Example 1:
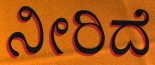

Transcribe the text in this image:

ನೀರಿದೆ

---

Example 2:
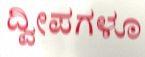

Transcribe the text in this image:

ದ್ವೀಪಗಳೂ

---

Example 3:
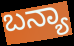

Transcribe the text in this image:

ಬನ್ಯಾ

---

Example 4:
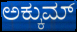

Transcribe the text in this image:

ಅಕ್ಕುಮ್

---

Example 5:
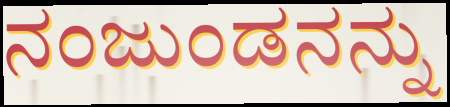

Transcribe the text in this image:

ನಂಜುಂಡನನ್ನು